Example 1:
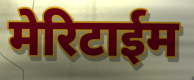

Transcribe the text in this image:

मेरिटाईम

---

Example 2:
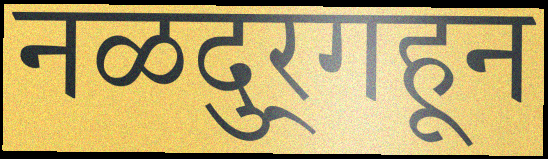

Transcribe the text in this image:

नळदुर्गहून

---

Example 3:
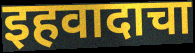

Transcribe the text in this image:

इहवादाचा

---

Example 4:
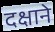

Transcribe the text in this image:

दक्षाने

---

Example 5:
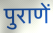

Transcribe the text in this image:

पुराणें